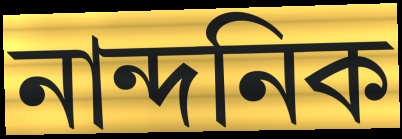
নান্দনিক